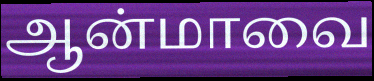
ஆன்மாவை